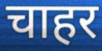
चाहर